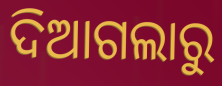
ଦିଆଗଲାରୁ